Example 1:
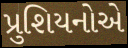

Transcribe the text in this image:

પ્રુશિયનોએ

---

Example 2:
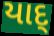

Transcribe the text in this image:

યાદ્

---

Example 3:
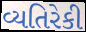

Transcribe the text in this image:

વ્યતિરેકી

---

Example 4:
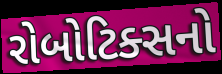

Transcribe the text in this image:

રોબોટિક્સનો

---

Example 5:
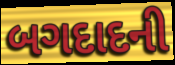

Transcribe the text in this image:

બગદાદની